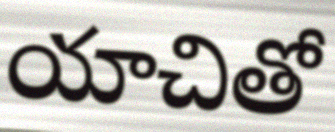
యాచితో